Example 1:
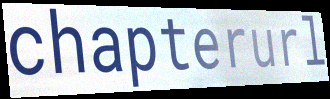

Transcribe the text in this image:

chapterurl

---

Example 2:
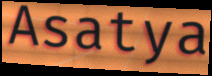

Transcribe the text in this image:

Asatya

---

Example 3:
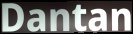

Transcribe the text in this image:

Dantan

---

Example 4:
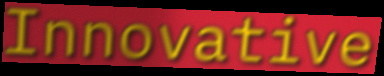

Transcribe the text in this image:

Innovative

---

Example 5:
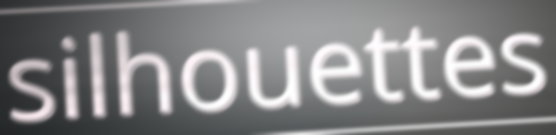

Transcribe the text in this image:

silhouettes